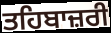
ਤਹਿਬਾਜ਼ਰੀ